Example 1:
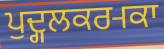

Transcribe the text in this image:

ਪੁਦ੍ਗਲਕਰ੍ਮਕਾ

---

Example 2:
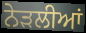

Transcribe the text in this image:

ਨੇੜਲੀਆਂ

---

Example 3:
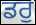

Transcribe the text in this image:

ਡਰੁ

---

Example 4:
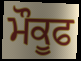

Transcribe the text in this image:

ਮੌਕੂਫ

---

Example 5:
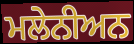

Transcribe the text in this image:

ਮਲੇਨੀਅਨ